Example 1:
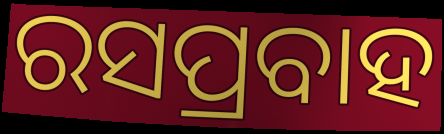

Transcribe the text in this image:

ରସପ୍ରବାହ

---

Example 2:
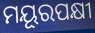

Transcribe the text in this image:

ମୟୂରପକ୍ଷୀ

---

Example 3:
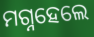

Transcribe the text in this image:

ମଗ୍ନହେଲେ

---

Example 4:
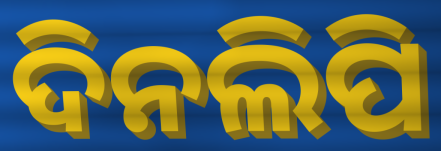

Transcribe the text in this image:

ଦିନଲିପି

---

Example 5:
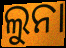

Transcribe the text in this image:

ଲୁନା